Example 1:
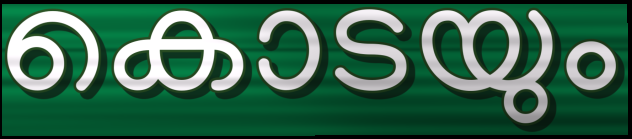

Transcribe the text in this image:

കൊടയും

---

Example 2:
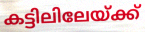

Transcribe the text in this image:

കട്ടിലിലേയ്ക്ക്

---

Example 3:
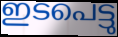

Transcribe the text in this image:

ഇടപെട്ടു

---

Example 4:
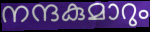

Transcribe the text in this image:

നന്ദകുമാറും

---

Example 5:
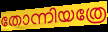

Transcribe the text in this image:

തോന്നിയത്രേ